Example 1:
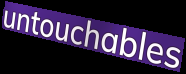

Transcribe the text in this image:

untouchables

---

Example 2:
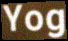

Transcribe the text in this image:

Yog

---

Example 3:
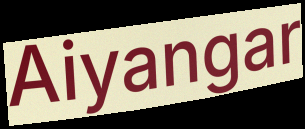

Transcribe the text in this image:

Aiyangar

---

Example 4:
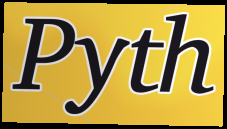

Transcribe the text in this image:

Pyth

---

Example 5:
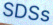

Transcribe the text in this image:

SDSs